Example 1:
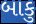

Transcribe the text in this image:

બાકુ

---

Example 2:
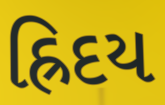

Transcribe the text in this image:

હ્રિદય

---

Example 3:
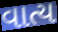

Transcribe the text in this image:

વાત્ય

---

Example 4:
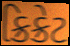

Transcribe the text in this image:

ક્રિક્રેટ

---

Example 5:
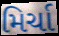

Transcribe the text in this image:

મિર્ચા